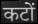
कटों